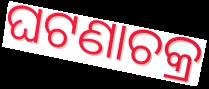
ଘଟଣାଚକ୍ର